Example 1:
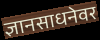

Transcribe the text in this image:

ज्ञानसाधनेवर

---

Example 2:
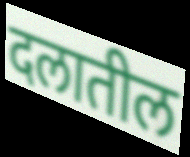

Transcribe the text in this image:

दलातील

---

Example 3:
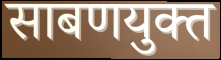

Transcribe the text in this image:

साबणयुक्त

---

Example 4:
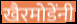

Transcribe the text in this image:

खैरमोडेंनी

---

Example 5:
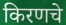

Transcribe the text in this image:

किरणचे